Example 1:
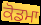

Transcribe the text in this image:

ਕੋਡਮਾ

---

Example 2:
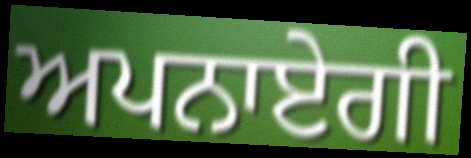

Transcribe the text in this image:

ਅਪਨਾਏਗੀ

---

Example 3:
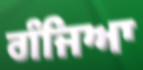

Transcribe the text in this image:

ਗੰਜਿਆ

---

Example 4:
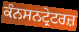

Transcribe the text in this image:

ਕੰਨਸਨਟ੍ਰੇਟਰਜ਼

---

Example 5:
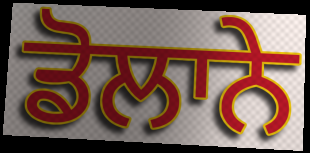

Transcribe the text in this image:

ਡੋਲਾਨੇ